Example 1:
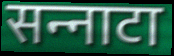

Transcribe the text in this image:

सन्नाटा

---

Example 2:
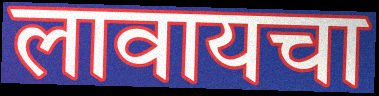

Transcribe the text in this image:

लावायचा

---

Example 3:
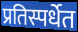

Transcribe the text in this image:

प्रतिस्पर्धेत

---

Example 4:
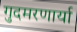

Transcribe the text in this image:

गुदमरणार्या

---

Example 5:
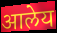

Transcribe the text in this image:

आलेय